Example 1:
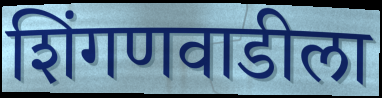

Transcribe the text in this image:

शिंगणवाडीला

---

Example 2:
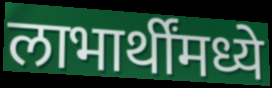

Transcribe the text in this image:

लाभार्थींमध्ये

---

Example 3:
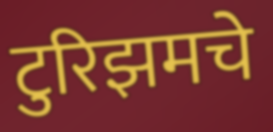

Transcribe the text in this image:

टुरिझमचे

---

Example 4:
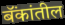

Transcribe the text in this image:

बॅंकांतील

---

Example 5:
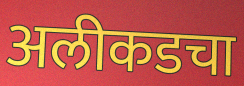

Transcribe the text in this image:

अलीकडचा